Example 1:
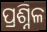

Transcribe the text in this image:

ପ୍ରଶ୍ନିଳ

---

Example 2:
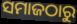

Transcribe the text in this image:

ସମାଜଠାରୁ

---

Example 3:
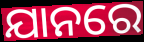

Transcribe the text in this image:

ଯାନରେ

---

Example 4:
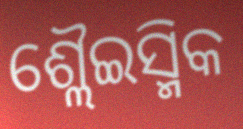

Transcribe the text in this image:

ଶ୍ଲୈଇସ୍ମିକ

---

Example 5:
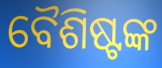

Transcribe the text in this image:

ବୈଶିଷ୍ଟଙ୍କ